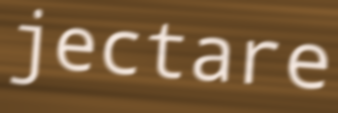
jectare